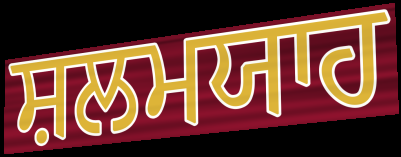
ਸ਼ਲਮਯਾਹ